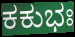
ಕಕುಭಃ